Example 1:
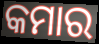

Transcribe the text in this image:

କମାର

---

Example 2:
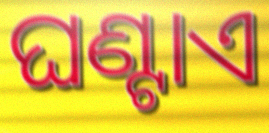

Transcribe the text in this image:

ଘଣ୍ଟାଏ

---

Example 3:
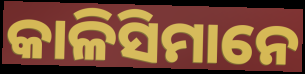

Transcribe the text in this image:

କାଳିସିମାନେ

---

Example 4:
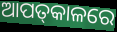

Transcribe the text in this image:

ଆପତ୍‌କାଳରେ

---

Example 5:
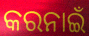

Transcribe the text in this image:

କରନାଇଁ